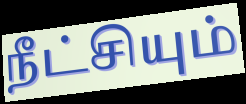
நீட்சியும்